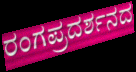
ರಂಗಪ್ರದರ್ಶನದ